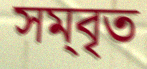
সম্‌বৃত